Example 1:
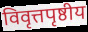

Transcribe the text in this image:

विवृत्तपृष्ठीय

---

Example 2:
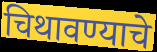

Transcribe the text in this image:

चिथावण्याचे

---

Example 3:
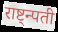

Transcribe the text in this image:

राष्ट्न्पती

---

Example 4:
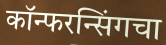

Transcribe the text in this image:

कॉन्फरन्सिंगचा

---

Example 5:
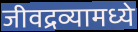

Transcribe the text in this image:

जीवद्रव्यामध्ये